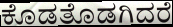
ಕೊಡತೊಡಗಿದರೆ